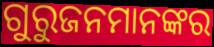
ଗୁରୁଜନମାନଙ୍କର